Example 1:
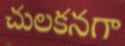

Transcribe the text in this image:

చులకనగా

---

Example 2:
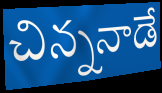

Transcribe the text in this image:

చిన్ననాడే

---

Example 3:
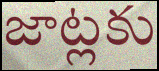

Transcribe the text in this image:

జాట్లకు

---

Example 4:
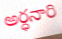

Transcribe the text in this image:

అర్ధనారి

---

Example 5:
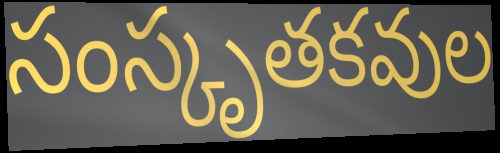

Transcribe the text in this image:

సంస్కృతకవుల